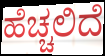
ಹೆಚ್ಚಲಿದೆ